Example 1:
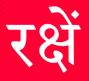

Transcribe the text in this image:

रक्षें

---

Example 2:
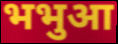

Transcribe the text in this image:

भभुआ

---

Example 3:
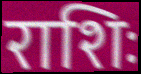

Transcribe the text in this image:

राशिः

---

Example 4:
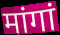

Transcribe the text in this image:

मांगां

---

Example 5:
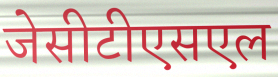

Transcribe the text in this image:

जेसीटीएसएल